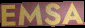
EMSA